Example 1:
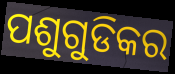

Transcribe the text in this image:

ପଶୁଗୁଡିକର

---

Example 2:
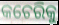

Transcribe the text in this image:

କଚେରିକୁ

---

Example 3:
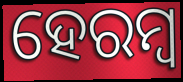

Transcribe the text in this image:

ହେରମ୍ୱ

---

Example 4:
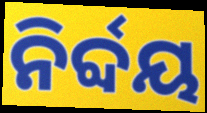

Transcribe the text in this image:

ନିର୍ବ୍ଦୟ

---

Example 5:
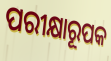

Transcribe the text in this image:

ପରୀକ୍ଷାରୂପକ